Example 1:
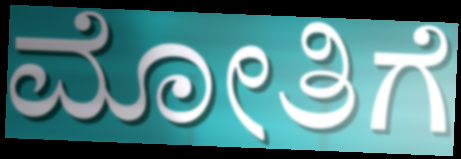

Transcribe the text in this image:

ಮೋತಿಗೆ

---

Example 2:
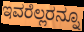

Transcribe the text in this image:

ಇವರೆಲ್ಲರನ್ನೂ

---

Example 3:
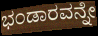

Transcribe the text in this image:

ಭಂಡಾರವನ್ನೇ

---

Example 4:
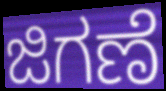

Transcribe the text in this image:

ಜಿಗಣೆ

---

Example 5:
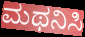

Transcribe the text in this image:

ಮಥನಿಸಿ